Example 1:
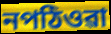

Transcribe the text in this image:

নপঠিওৱা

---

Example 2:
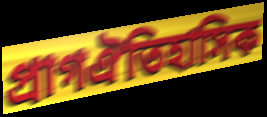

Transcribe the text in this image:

প্ৰাগঐতিহাসিক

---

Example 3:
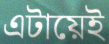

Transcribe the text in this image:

এটায়েই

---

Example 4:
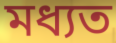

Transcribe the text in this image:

মধ্যত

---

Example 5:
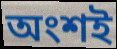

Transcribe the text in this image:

অংশই